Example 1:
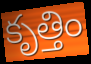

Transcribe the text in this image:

కృత్తిం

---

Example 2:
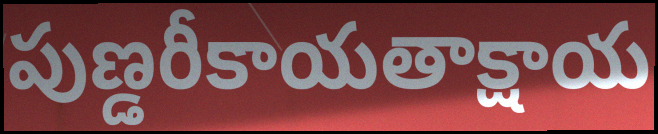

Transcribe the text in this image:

పుణ్డరీకాయతాక్షాయ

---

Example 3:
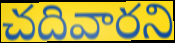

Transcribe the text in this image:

చదివారని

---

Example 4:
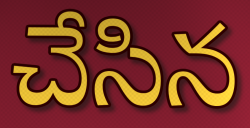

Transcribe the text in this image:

చేసిన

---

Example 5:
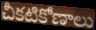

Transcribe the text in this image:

చీకటికోణాలు